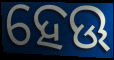
ହେଊ